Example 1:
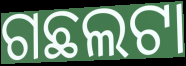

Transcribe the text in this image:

ଗଛଲଟା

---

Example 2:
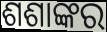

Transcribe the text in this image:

ଶଶାଙ୍କର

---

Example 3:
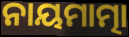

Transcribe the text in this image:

ନାୟମାତ୍ମା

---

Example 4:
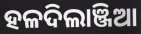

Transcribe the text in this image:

ହଳଦିଲାଞ୍ଜିଆ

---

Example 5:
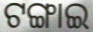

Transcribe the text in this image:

ଟଙ୍ଗାଇ